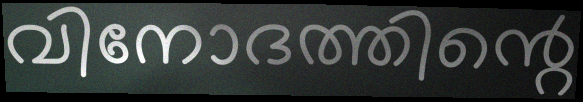
വിനോദത്തിന്റെ